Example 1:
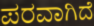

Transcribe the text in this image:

ಪರವಾಗಿದೆ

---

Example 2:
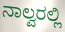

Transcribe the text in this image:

ನಾಲ್ವರಲ್ಲಿ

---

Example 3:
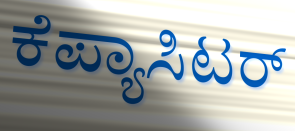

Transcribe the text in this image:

ಕೆಪ್ಯಾಸಿಟರ್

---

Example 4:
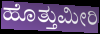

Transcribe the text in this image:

ಹೊತ್ತುಮೀರಿ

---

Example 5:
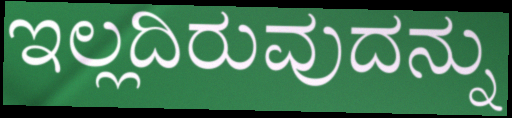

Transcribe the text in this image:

ಇಲ್ಲದಿರುವುದನ್ನು